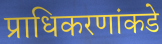
प्राधिकरणांकडे